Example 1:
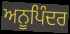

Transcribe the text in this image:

ਅਨੂਪਿੰਦਰ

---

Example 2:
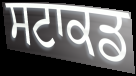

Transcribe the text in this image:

ਸਟਾਕਡ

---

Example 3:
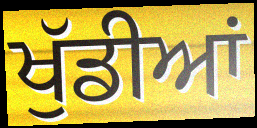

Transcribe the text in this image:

ਖੁੱਡੀਆਂ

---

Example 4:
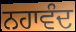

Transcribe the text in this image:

ਨਹਾਵੰਦ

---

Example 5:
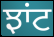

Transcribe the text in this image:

ਝਾਂਟ